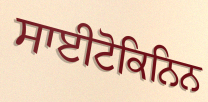
ਸਾਈਟੋਕਿਨਿਨ